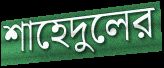
শাহেদুলের